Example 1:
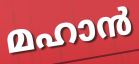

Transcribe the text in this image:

മഹാൻ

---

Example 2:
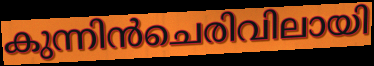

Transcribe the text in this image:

കുന്നിൻചെരിവിലായി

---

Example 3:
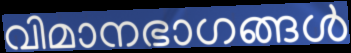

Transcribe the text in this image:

വിമാനഭാഗങ്ങൾ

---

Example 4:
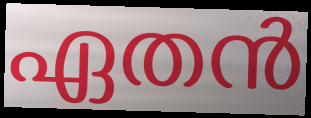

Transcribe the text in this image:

ഏതൻ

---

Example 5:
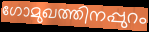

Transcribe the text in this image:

ഗോമുഖത്തിനപ്പുറം